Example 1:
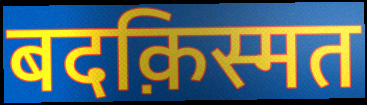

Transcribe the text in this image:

बदक़िस्मत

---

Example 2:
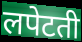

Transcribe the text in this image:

लपेटती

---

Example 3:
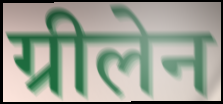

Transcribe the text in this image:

ग्रीलेन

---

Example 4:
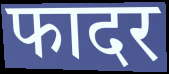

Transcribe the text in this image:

फादर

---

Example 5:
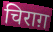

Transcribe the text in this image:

चिराग़